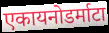
एकायनोडर्माटा